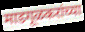
माडगूळकरांच्या